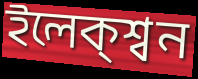
ইলেক্‌শ্বন